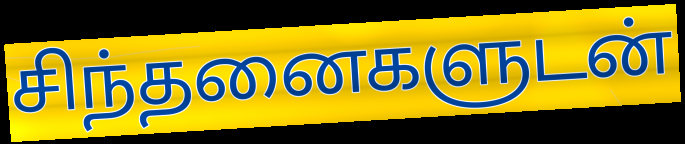
சிந்தனைகளுடன்